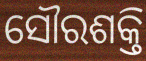
ସୌରଶକ୍ତି